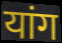
यांग